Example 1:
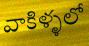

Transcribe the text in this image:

వాకిళ్ళలో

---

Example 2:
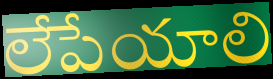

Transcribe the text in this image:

లేపేయాలి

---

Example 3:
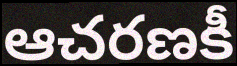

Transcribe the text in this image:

ఆచరణకీ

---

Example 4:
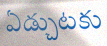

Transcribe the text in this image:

ఏడ్చుటకు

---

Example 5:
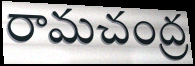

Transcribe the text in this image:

రామచంద్ర